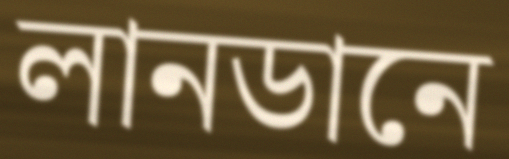
লানডানে